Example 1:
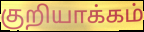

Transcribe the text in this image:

குறியாக்கம்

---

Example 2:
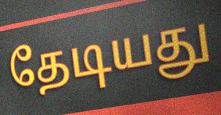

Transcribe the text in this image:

தேடியது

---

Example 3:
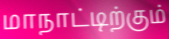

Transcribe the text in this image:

மாநாட்டிற்கும்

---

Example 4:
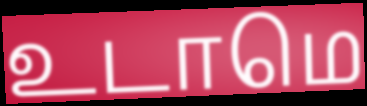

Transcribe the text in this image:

உடாமெ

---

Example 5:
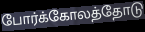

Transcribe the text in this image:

போர்க்கோலத்தோடு